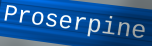
Proserpine